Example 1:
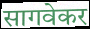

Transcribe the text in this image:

सागवेकर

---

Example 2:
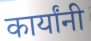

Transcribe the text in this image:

कार्यांनी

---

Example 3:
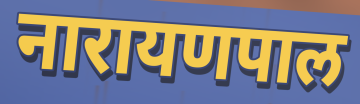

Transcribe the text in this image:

नारायणपाल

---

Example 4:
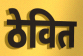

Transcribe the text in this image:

ठेवित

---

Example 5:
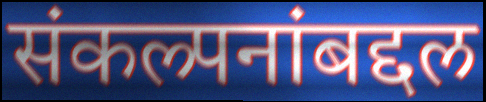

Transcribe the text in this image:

संकल्पनांबद्दल